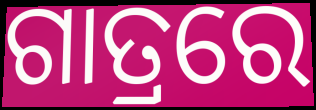
ଗାତ୍ରରେ